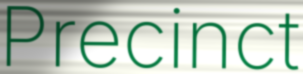
Precinct